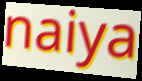
naiya